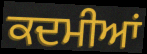
ਕਦਮੀਆਂ